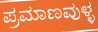
ಪ್ರಮಾಣವುಳ್ಳ